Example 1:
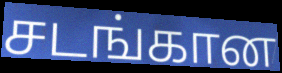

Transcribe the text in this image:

சடங்கான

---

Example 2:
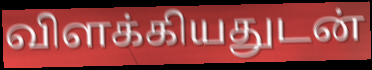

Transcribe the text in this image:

விளக்கியதுடன்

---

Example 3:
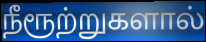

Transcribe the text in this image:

நீரூற்றுகளால்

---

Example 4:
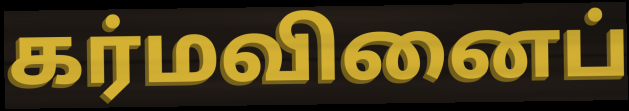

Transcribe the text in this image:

கர்மவினைப்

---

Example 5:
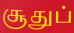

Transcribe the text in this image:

சூதுப்